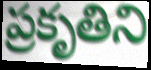
ప్రకృతిని